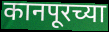
कानपूरच्या